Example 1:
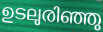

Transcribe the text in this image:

ഉടലുരിഞ്ഞു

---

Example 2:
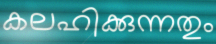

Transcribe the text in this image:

കലഹിക്കുന്നതും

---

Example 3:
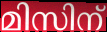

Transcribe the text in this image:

മിസിന്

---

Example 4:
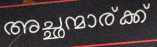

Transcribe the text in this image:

അച്ഛന്മാര്ക്ക്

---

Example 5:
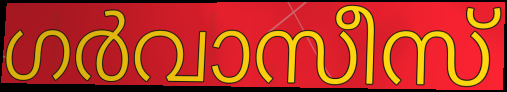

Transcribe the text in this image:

ഗർവാസീസ്